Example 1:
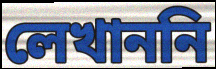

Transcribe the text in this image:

লেখাননি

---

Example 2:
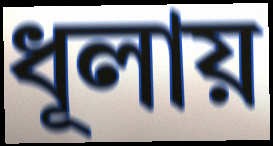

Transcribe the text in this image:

ধূলায়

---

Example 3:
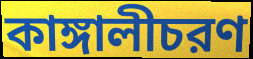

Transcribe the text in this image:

কাঙ্গালীচরণ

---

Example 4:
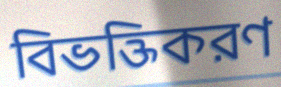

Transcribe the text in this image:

বিভক্তিকরণ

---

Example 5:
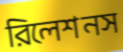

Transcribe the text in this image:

রিলেশনস